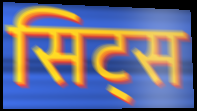
सिट्स